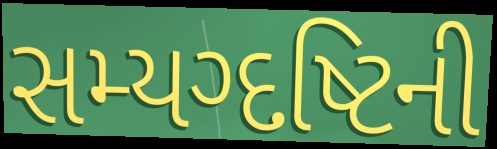
સમ્યગ્દષ્ટિની